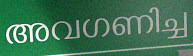
അവഗണിച്ച